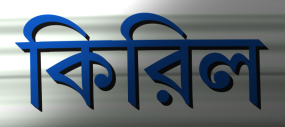
কিরিল